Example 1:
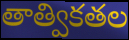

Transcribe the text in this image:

తాత్వికతల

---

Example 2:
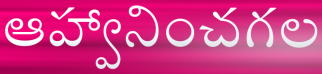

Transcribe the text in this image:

ఆహ్వానించగల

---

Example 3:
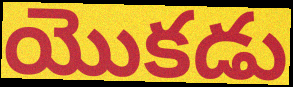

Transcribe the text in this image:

యొకడు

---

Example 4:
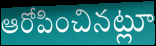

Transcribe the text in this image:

ఆరోపించినట్లూ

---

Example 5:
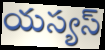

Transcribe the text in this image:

యస్యస్